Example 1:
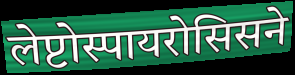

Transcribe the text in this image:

लेप्टोस्पायरोसिसने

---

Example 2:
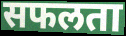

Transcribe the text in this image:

सफलता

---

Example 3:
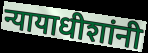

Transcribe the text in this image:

न्यायाधीशांनी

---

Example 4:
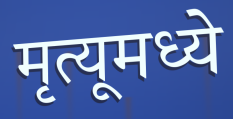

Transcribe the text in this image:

मृत्यूमध्ये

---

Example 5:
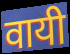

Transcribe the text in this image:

वायी